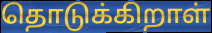
தொடுக்கிறாள்